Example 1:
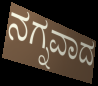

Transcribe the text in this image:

ನಗ್ನವಾದ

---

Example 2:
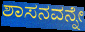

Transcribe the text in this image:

ಶಾಸನವನ್ನೇ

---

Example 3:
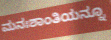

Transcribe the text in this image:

ಮನಃಶಾಂತಿಯನ್ನೂ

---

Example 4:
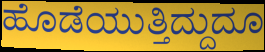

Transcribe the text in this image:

ಹೊಡೆಯುತ್ತಿದ್ದುದೂ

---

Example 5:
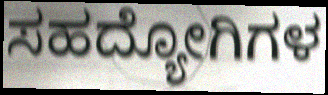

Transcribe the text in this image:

ಸಹದ್ಯೋಗಿಗಳ